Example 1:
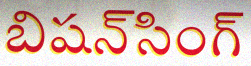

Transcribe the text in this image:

బిషన్‌సింగ్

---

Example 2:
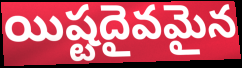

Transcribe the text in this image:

యిష్టదైవమైన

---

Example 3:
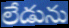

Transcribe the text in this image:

లేడును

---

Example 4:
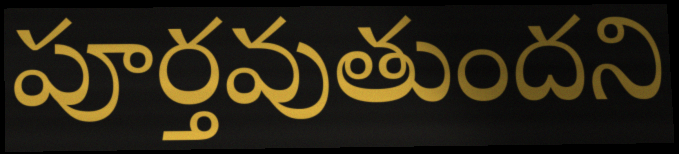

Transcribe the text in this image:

పూర్తవుతుందని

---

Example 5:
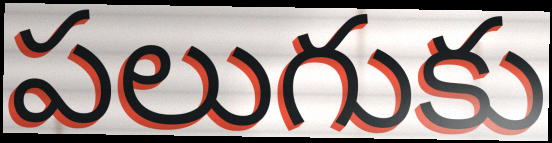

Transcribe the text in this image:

పలుగుకు